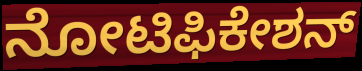
ನೋಟಿಫಿಕೇಶನ್